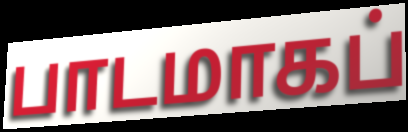
பாடமாகப்